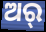
ଅର୍